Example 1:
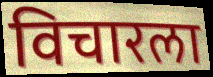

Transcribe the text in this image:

विचारला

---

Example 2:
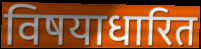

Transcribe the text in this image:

विषयाधारित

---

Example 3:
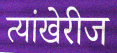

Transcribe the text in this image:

त्यांखेरीज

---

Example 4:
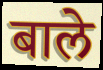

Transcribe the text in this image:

बाले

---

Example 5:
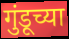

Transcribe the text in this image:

गुंडूच्या